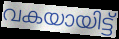
വകയായിട്ട്